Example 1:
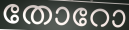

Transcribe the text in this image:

തോറോ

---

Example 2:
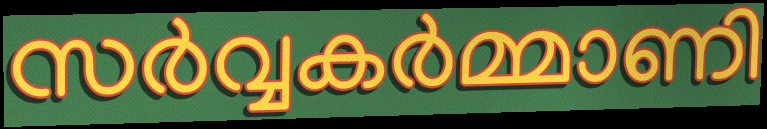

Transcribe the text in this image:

സർവ്വകർമ്മാണി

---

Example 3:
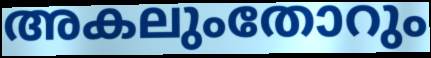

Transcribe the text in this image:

അകലുംതോറും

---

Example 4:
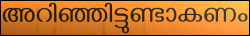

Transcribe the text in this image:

അറിഞ്ഞിട്ടുണ്ടാകണം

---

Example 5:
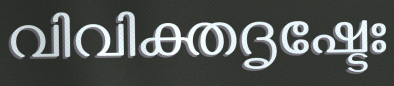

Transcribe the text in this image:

വിവിക്തദൃഷ്ടേഃ